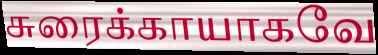
சுரைக்காயாகவே